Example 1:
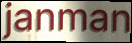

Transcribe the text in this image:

janman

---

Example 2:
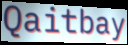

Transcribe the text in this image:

Qaitbay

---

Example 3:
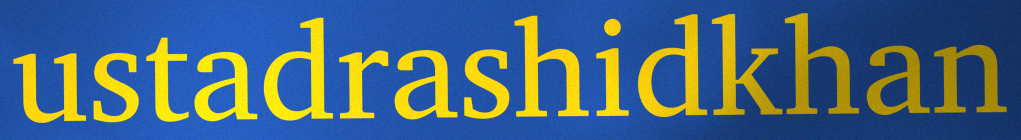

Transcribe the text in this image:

ustadrashidkhan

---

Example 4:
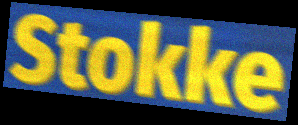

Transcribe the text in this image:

Stokke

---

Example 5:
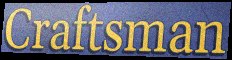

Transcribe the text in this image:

Craftsman